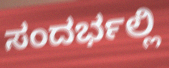
ಸಂದರ್ಭಲ್ಲಿ